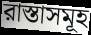
রাস্তাসমূহ